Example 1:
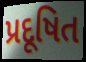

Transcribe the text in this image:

પ્રદૂષિત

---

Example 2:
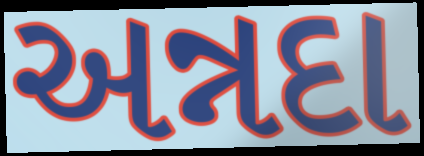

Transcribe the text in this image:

અન્નદા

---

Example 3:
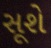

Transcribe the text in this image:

સૂશે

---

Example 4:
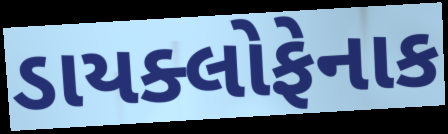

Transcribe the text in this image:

ડાયક્લોફેનાક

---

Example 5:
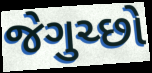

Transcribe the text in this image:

જેગુચ્છો